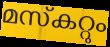
മസ്‌കറ്റും